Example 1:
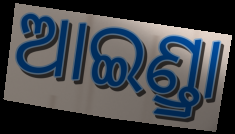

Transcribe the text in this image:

ଆଇଣ୍ଡ୍ରା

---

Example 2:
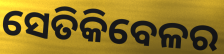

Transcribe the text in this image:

ସେତିକିବେଳର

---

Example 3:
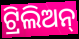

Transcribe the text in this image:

ଟ୍ରିଲିଅନ୍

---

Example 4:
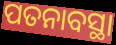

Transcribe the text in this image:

ପତନାବସ୍ଥା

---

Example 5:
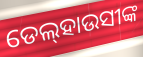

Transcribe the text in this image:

ଡେଲ୍‌ହାଉସୀଙ୍କ